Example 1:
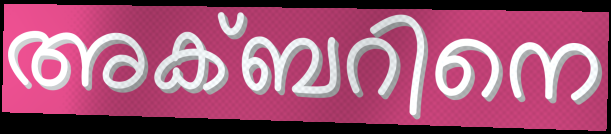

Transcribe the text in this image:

അക്ബറിനെ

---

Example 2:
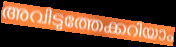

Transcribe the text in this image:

അവിടുത്തേക്കറിയാം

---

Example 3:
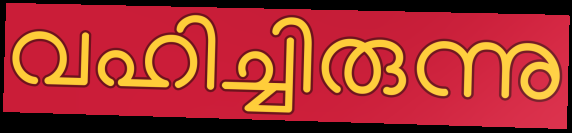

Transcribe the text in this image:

വഹിച്ചിരുന്നു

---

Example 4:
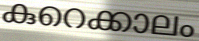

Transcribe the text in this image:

കുറെക്കാലം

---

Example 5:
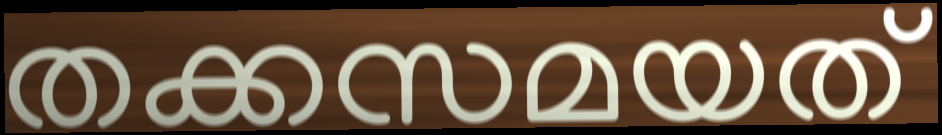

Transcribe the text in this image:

തക്കസമയത്